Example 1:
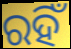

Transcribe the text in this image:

ରହିଁ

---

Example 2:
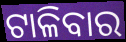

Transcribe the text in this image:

ଟାଳିବାର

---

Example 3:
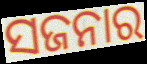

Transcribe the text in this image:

ସଜନାର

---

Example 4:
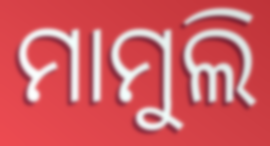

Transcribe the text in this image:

ମାମୁଲି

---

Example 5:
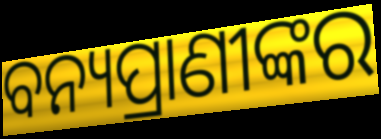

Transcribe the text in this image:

ବନ୍ୟପ୍ରାଣୀଙ୍କର